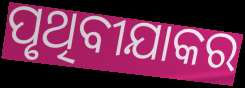
ପୃଥିବୀଯାକର